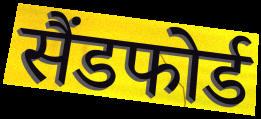
सैंडफोर्ड